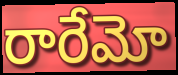
రారేమో